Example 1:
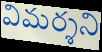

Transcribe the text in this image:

విమర్శని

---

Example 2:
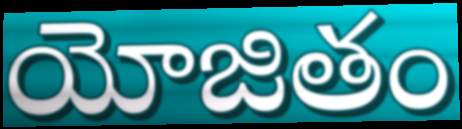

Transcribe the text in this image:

యోజితం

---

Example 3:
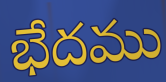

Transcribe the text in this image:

భేదము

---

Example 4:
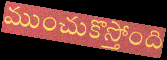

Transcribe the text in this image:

ముంచుకొస్తోంది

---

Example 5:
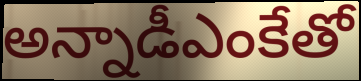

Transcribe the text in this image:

అన్నాడీఎంకేతో